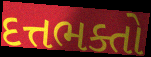
દત્તભક્તો